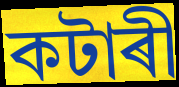
কটাৰী